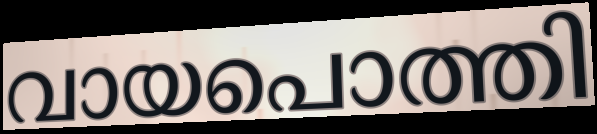
വായപൊത്തി